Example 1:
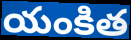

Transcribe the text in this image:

యంకిత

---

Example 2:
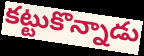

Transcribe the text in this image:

కట్టుకొన్నాడు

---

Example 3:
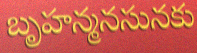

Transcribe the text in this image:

బృహన్మనసునకు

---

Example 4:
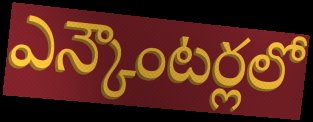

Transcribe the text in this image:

ఎన్కౌంటర్లలో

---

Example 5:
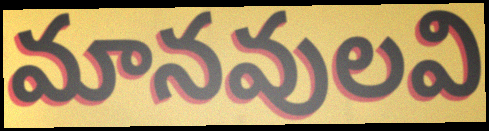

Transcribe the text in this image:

మానవులవి